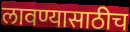
लावण्यासाठीच